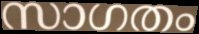
സാഗതം